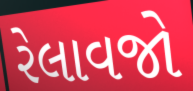
રેલાવજો